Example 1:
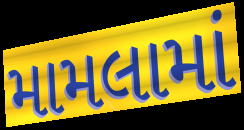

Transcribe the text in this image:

મામલામાં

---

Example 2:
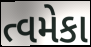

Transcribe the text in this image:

ત્વમેકા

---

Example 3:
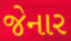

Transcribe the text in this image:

જેનાર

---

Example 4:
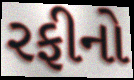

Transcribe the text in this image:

રફીનો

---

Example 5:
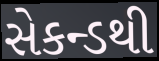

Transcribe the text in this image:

સેકન્ડથી